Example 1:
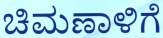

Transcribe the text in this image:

ಚಿಮಣಾಳಿಗೆ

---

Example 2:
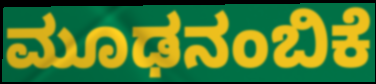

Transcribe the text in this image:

ಮೂಢನಂಬಿಕೆ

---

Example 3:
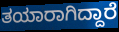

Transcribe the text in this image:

ತಯಾರಾಗಿದ್ದಾರೆ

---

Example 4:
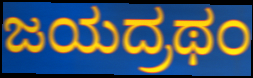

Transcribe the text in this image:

ಜಯದ್ರಥಂ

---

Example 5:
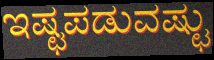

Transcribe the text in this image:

ಇಷ್ಟಪಡುವಷ್ಟು